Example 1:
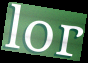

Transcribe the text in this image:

lor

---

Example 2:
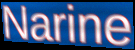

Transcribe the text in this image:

Narine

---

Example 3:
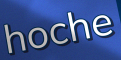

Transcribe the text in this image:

hoche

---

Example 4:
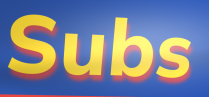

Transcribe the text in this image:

Subs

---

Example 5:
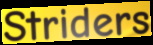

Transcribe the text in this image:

Striders